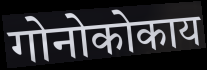
गोनोकोकाय